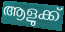
ആളുക്ക്